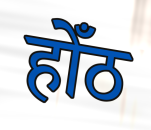
होँठ